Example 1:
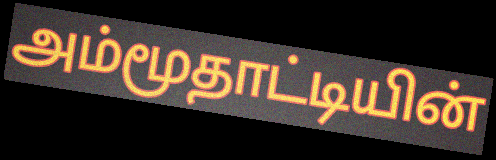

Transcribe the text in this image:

அம்மூதாட்டியின்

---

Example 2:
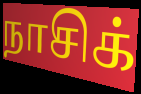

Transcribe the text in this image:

நாசிக்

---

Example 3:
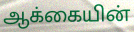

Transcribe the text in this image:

ஆக்கையின்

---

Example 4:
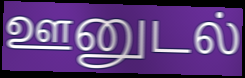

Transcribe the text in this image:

ஊனுடல்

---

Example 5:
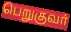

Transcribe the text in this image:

பெறுகுவர்